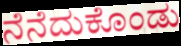
ನೆನೆದುಕೊಂಡು